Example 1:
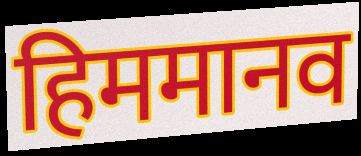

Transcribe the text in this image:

हिममानव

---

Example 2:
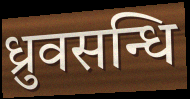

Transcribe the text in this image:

ध्रुवसन्धि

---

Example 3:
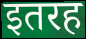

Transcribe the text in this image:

इतरह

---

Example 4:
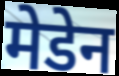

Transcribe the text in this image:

मेडेन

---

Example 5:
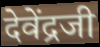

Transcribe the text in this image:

देवेंद्रजी